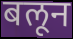
बलून